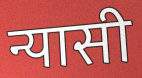
न्यासी